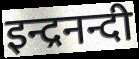
इन्द्रनन्दी